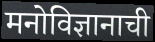
मनोविज्ञानाची